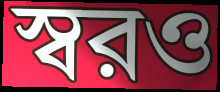
স্বরও